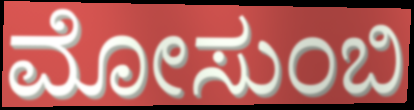
ಮೋಸುಂಬಿ